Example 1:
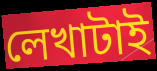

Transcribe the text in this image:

লেখাটাই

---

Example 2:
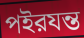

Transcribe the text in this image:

পইরযন্ত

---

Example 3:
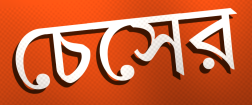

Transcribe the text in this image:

চেসের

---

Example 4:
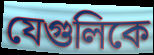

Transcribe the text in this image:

যেগুলিকে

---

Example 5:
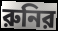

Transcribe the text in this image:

রুনির